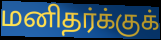
மனிதர்க்குக்